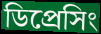
ডিপ্রেসিং